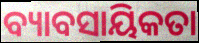
ବ୍ୟାବସାୟିକତା